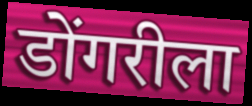
डोंगरीला